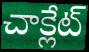
చాక్లేట్